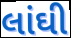
લાંઘી